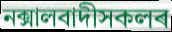
নক্সালবাদীসকলৰ